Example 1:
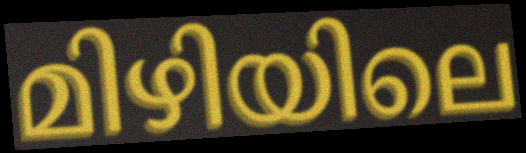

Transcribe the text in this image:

മിഴിയിലെ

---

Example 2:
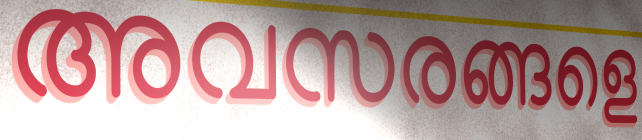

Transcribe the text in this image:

അവസരങ്ങളെ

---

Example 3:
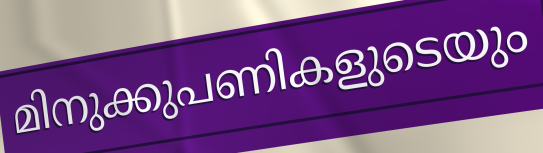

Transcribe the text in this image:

മിനുക്കുപണികളുടെയും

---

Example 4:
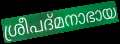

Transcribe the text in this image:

ശ്രീപദ്മനാഭായ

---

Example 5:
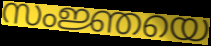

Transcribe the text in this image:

സംജ്ഞയെ